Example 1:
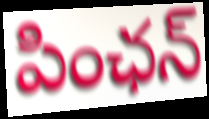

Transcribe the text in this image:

పింఛన్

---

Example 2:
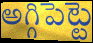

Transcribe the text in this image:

అగ్గిపెట్టె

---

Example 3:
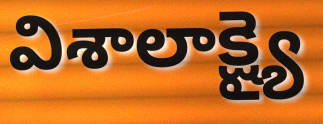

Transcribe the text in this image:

విశాలాక్ష్యై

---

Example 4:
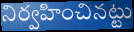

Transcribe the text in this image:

నిర్వహించినట్టు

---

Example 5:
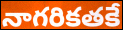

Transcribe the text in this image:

నాగరికతకే